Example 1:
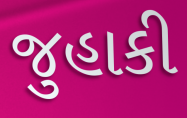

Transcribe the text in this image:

જુહાકી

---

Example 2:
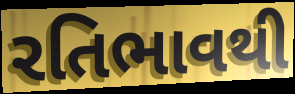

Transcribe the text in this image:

રતિભાવથી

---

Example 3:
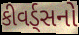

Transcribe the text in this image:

કીવર્ડ્સનો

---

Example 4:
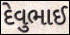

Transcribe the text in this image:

દેવુભાઈ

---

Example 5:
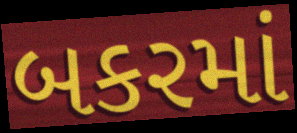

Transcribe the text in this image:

બકરમાં